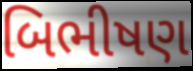
બિભીષણ